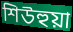
শিউহুয়া